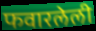
फवारलेली